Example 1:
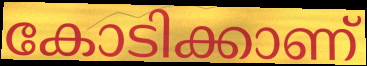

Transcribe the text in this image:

കോടിക്കാണ്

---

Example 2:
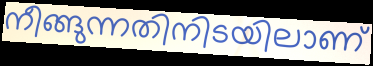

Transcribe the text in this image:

നീങ്ങുന്നതിനിടയിലാണ്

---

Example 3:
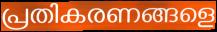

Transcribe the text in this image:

പ്രതികരണങ്ങളെ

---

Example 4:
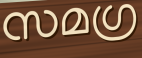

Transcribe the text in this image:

സമഗ്ര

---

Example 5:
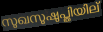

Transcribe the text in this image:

സുഖസുഷുപ്തിയില്